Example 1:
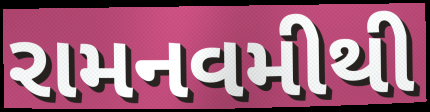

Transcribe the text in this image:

રામનવમીથી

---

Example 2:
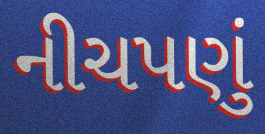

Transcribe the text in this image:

નીચપણું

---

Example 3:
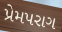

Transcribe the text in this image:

પ્રેમપરાગ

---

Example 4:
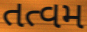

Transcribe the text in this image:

તત્વમ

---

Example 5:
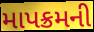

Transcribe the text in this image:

માપક્રમની